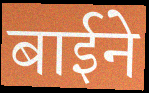
बाईने